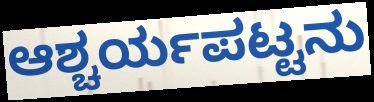
ಆಶ್ಚರ್ಯಪಟ್ಟನು